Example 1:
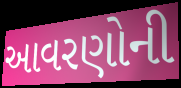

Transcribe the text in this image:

આવરણોની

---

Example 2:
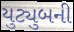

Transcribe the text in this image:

યુટ્યુબની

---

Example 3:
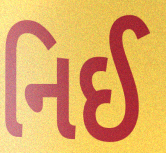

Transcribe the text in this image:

નિઈ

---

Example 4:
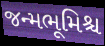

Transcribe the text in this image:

જન્મભૂમિશ્ચ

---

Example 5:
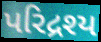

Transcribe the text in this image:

પરિદ્રશ્ય